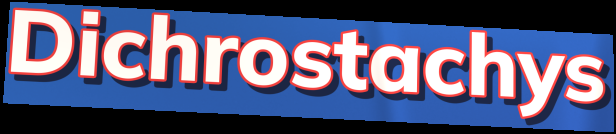
Dichrostachys